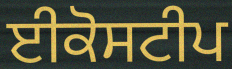
ਈਕੋਸਟੀਪ